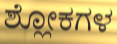
ಶ್ಲೋಕಗಳ